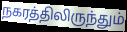
நகரத்திலிருந்தும்